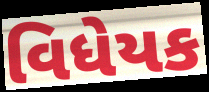
વિધેયક